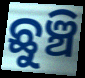
ଛୁଞ୍ଚି